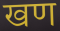
खण